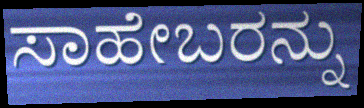
ಸಾಹೇಬರನ್ನು